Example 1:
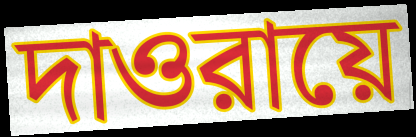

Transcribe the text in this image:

দাওরায়ে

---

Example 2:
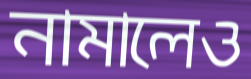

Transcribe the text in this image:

নামালেও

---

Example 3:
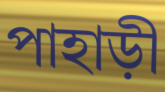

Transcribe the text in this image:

পাহাড়ী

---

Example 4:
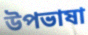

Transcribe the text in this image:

উপভাষা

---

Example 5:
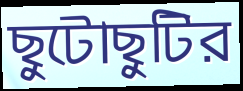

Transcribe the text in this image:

ছুটোছুটির